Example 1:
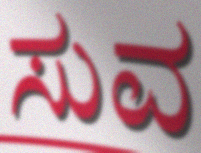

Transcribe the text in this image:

ಸುವ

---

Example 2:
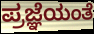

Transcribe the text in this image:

ಪ್ರಜ್ಞೆಯಂತೆ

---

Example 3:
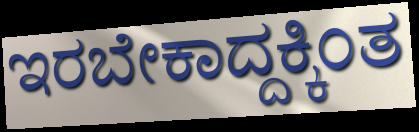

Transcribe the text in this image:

ಇರಬೇಕಾದ್ದಕ್ಕಿಂತ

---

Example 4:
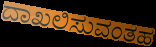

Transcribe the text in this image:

ದಾಖಲಿಸುವಂತಹ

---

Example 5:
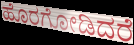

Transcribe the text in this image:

ಹೊರಗೋಡಿದರೆ